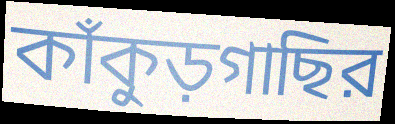
কাঁকুড়গাছির